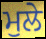
ਮੁਲੇ